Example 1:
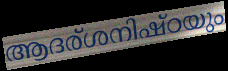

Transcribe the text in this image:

ആദര്ശനിഷ്ഠയും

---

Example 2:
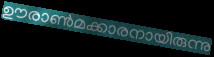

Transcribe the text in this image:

ഊരാൺമക്കാരനായിരുന്നു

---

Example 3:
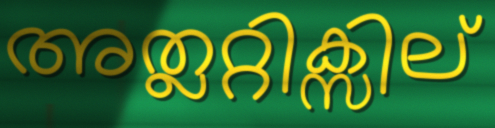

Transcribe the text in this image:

അത്ലറ്റിക്സില്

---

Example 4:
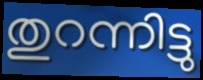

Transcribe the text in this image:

തുറന്നിട്ടു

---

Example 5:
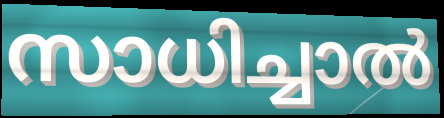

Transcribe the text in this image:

സാധിച്ചാൽ